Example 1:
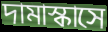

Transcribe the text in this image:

দামাস্কাসে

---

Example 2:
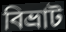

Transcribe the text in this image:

বিভ্রাট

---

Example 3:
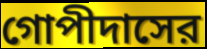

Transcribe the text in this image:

গোপীদাসের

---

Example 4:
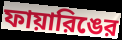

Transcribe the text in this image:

ফায়ারিঙের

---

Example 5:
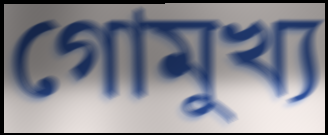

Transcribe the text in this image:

গোমুখ্য